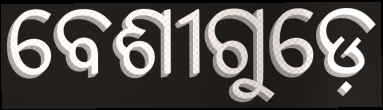
ବେଶୀଗୁଡ଼େ